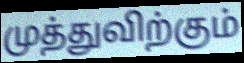
முத்துவிற்கும்